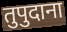
तुपुदाना